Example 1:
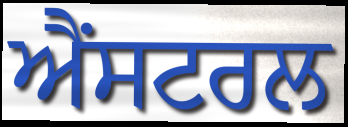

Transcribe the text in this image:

ਐਂਸਟਰਲ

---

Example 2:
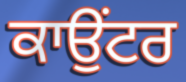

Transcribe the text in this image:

ਕਾਉਂਟਰ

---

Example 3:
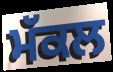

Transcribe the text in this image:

ਮੱਕਲ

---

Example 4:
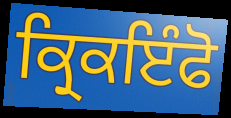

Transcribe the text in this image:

ਕ੍ਰਿਕਇੰਫੋ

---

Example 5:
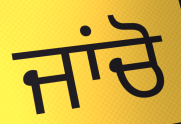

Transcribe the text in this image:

ਜਾਂਚੋ